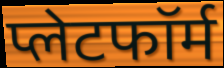
प्‍लेटफॉर्म